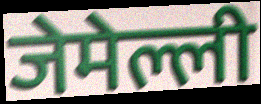
जेमेल्ली